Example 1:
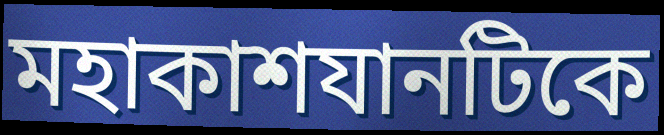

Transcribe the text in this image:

মহাকাশযানটিকে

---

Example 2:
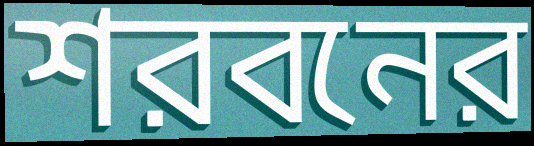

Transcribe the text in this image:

শরবনের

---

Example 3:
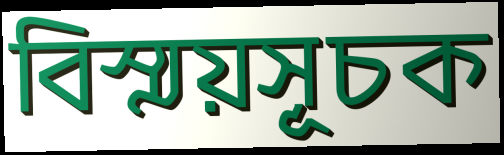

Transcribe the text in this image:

বিস্ময়সূচক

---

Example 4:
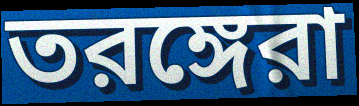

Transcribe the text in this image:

তরঙ্গেরা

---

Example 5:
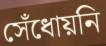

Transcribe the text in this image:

সেঁধোয়নি